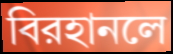
বিরহানলে